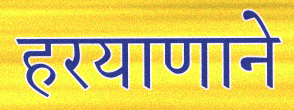
हरयाणाने